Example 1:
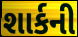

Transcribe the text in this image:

શાર્કની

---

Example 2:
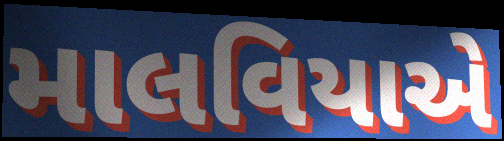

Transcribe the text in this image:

માલવિયાએ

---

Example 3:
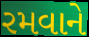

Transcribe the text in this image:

રમવાને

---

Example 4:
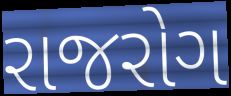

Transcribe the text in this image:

રાજરોગ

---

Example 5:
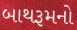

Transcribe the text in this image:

બાથરૂમનો